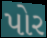
પોર